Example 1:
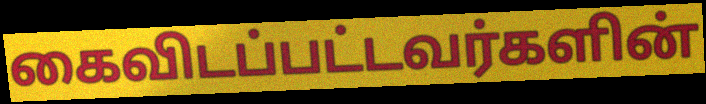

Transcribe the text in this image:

கைவிடப்பட்டவர்களின்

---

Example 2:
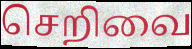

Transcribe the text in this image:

செறிவை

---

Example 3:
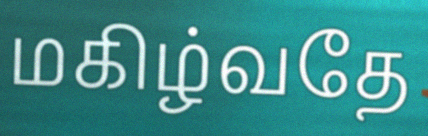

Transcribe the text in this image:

மகிழ்வதே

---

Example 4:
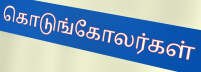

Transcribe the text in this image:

கொடுங்கோலர்கள்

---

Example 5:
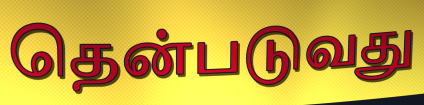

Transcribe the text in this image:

தென்படுவது